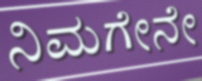
ನಿಮಗೇನೇ